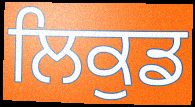
ਲਿਕੁਡ